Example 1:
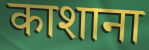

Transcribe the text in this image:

काशाना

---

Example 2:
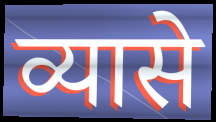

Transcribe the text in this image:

व्यासे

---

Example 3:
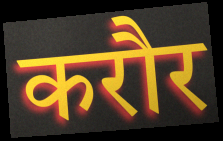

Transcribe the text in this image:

करौर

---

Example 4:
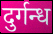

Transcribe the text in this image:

दुर्गन्ध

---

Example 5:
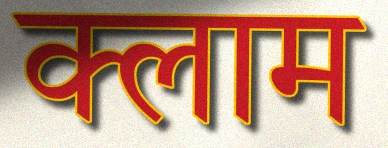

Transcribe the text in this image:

क्लाम